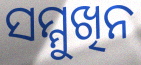
ସମ୍ମୁଖିନ